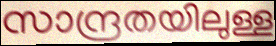
സാന്ദ്രതയിലുള്ള